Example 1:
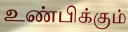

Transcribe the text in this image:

உண்பிக்கும்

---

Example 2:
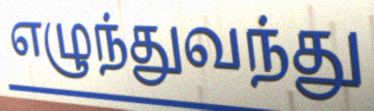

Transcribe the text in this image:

எழுந்துவந்து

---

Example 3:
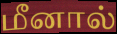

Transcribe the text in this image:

மீனால்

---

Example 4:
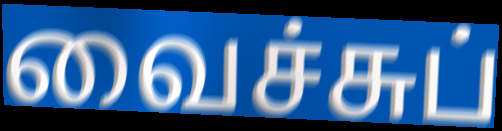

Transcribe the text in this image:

வைச்சுப்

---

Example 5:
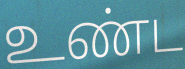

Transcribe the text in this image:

உண்ட